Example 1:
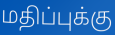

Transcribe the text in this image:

மதிப்புக்கு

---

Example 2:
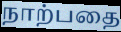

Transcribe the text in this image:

நாற்பதை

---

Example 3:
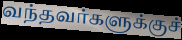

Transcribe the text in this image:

வந்தவர்களுக்குச்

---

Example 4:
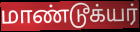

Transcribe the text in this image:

மாண்டூக்யர்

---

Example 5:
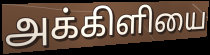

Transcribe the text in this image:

அக்கிளியை